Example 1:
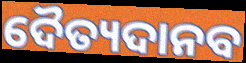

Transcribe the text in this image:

ଦୈତ୍ୟଦାନବ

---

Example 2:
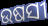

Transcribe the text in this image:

ଉଷସୀ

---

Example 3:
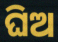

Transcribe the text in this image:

ଘିଅ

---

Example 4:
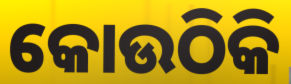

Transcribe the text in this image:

କୋଉଠିକି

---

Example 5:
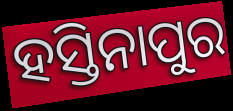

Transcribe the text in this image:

ହସ୍ତିନାପୁର